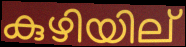
കുഴിയില്